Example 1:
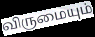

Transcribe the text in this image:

விருமையும்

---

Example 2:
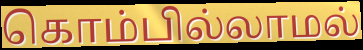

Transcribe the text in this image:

கொம்பில்லாமல்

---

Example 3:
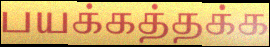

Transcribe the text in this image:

பயக்கத்தக்க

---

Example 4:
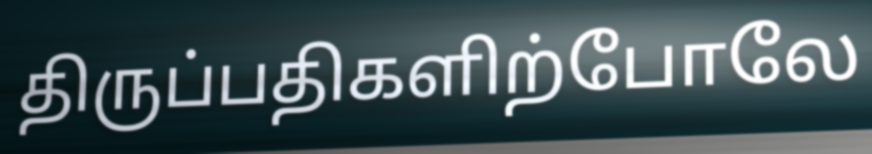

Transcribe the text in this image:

திருப்பதிகளிற்போலே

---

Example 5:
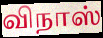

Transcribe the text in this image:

விநாஸ்